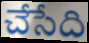
చేసేది